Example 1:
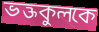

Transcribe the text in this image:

ভক্তকুলকে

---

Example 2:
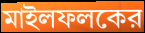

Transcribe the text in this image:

মাইলফলকের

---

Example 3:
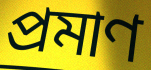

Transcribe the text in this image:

প্রমাণ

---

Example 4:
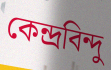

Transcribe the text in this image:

কেন্দ্রবিন্দু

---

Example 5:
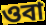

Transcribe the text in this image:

ওবা